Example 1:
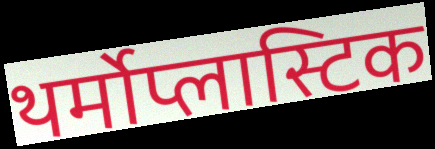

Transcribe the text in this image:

थर्मोप्लास्टिक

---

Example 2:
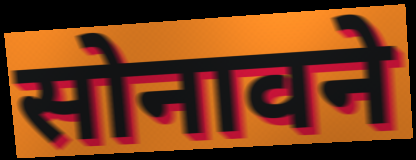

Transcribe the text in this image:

सोनावने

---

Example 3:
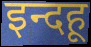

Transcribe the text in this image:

इन्दहू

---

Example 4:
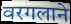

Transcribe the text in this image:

वरगलाने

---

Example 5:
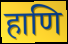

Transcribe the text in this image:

हाणि